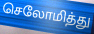
செலோமித்து